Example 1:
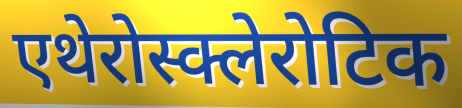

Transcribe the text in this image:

एथेरोस्क्लेरोटिक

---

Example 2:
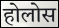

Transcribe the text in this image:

होलोस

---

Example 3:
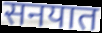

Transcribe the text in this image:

सनयात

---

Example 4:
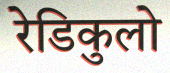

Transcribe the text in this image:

रेडिकुलो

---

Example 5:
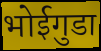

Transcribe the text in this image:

भोईगुडा